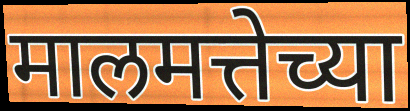
मालमत्तेच्या